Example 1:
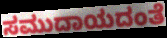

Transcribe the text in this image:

ಸಮುದಾಯದಂತೆ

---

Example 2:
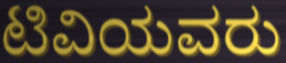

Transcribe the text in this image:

ಟಿವಿಯವರು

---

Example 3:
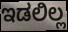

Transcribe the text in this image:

ಇಡಲಿಲ್ಲ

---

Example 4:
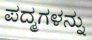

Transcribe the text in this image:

ಪದ್ಮಗಳನ್ನು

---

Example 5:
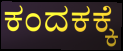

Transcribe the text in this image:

ಕಂದಕಕ್ಕೆ